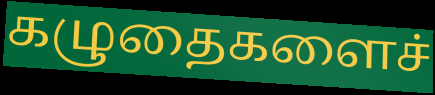
கழுதைகளைச்